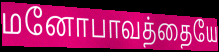
மனோபாவத்தையே